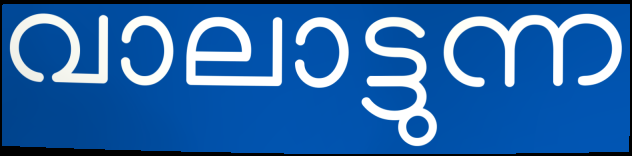
വാലാട്ടുന്ന